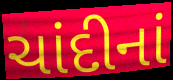
ચાંદીનાં